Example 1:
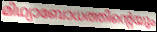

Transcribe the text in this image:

മിഥ്യാബോധത്തിന്റെയും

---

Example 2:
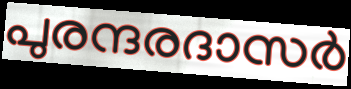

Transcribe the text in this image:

പുരന്ദരദാസർ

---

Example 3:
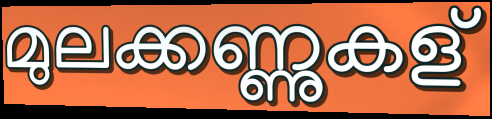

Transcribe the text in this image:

മുലക്കണ്ണുകള്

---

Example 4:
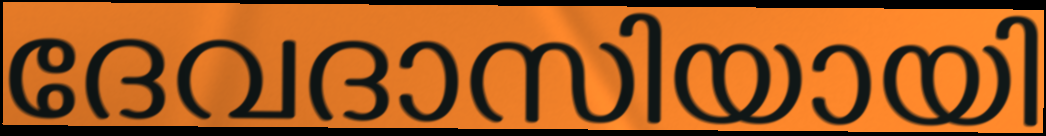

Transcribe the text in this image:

ദേവദാസിയായി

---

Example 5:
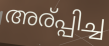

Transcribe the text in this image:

അര്പ്പിച്ച